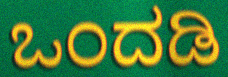
ಒಂದಡಿ